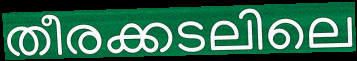
തീരക്കടലിലെ